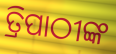
ତ୍ରିପାଠୀଙ୍କ